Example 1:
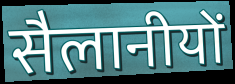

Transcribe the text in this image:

सैलानीयों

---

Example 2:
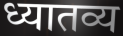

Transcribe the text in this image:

ध्यातव्य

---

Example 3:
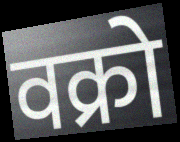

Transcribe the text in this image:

वक्रो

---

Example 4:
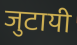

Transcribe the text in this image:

जुटायी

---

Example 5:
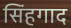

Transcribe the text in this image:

सिंहगाद